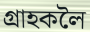
গ্ৰাহকলৈ